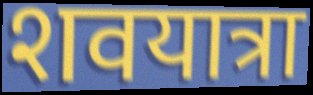
शवयात्रा